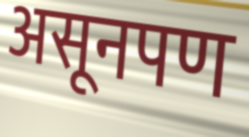
असूनपण